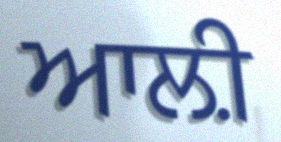
ਆਲ਼ੀ